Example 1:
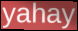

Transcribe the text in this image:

yahay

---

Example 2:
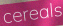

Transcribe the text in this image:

cereals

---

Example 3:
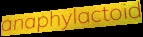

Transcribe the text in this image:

anaphylactoid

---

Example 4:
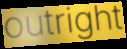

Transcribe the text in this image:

outright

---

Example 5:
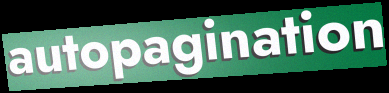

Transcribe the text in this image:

autopagination